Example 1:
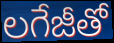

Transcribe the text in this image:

లగేజీతో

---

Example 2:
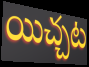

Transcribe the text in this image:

యిచ్చట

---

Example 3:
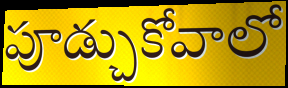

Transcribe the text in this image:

పూడ్చుకోవాలో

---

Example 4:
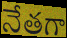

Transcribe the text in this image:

నేతగా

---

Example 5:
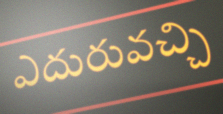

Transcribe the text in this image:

ఎదురువచ్చి